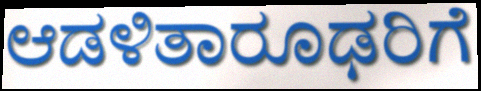
ಆಡಳಿತಾರೂಢರಿಗೆ